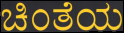
ಚಿಂತೆಯ